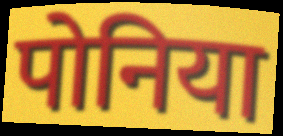
पोनिया